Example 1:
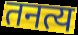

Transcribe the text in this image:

तनत्य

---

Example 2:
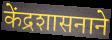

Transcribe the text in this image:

केंद्रशासनाने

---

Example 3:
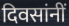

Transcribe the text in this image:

दिवसांनीं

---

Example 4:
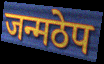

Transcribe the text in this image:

जन्मठेप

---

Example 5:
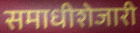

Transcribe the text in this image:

समाधीशेजारी